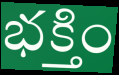
భక్తిం